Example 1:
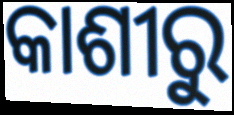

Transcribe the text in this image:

କାଶୀରୁ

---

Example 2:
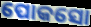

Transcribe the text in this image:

ପୋକସୋ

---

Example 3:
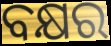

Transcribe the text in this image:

ବକ୍ଷର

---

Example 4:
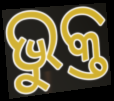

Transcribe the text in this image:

ଭୁକ୍ତ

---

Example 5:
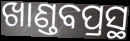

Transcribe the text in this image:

ଖାଣ୍ଡବପ୍ରସ୍ଥ